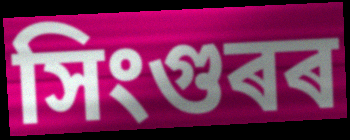
সিংগুৰৰ